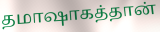
தமாஷாகத்தான்